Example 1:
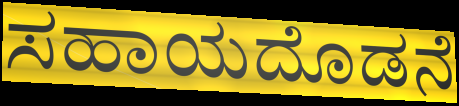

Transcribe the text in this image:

ಸಹಾಯದೊಡನೆ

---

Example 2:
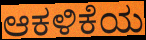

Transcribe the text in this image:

ಆಕಳಿಕೆಯ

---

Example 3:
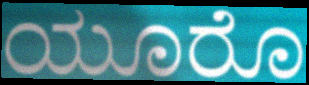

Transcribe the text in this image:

ಯೂರೊ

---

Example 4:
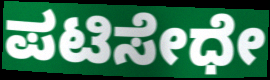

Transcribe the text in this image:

ಪಟಿಸೇಧೇ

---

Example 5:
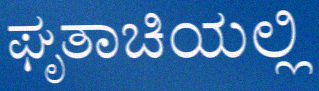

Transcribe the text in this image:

ಘೃತಾಚಿಯಲ್ಲಿ